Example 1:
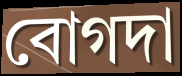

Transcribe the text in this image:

বোগদা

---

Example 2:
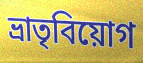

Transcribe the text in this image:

ভ্রাতৃবিয়োগ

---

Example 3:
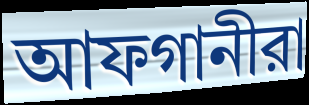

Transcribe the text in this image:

আফগানীরা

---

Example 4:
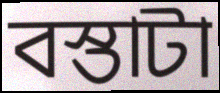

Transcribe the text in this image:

বস্তাটা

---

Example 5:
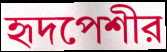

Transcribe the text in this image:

হৃদপেশীর